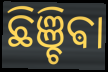
ଛିଞ୍ଚିଵା